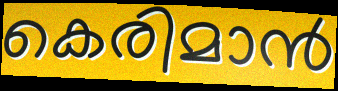
കെരിമാൻ